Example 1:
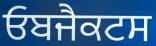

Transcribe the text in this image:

ਓਬਜੈਕਟਸ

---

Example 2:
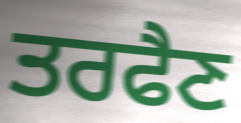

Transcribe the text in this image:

ਤਰਫੈਣ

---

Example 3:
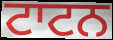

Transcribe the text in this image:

ਟਾਟਨ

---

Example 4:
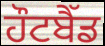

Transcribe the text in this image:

ਹੌਟਬੈੱਡ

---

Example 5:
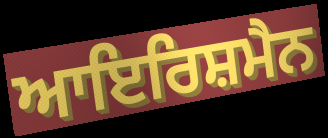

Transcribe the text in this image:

ਆਇਰਿਸ਼ਮੈਨ